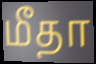
மீதா